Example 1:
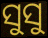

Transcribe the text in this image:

ସୁସୁ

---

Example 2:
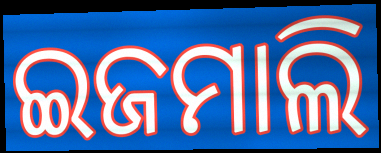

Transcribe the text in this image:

ଇଜମାଲି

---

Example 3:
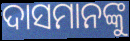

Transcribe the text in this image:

ଦାସମାନଙ୍କୁ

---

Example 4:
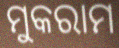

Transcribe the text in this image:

ମୁକରାମ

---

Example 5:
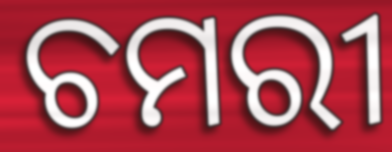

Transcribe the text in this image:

ଚମରୀ